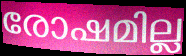
രോഷമില്ല